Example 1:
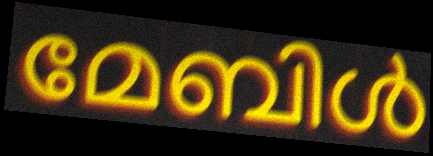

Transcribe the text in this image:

മേബിൾ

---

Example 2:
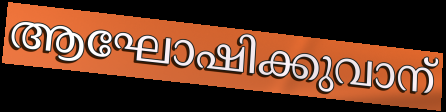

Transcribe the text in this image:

ആഘോഷിക്കുവാന്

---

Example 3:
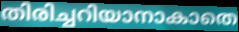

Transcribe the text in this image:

തിരിച്ചറിയാനാകാതെ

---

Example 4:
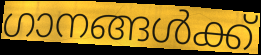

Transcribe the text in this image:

ഗാനങ്ങൾക്ക്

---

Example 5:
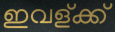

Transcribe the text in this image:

ഇവള്ക്ക്